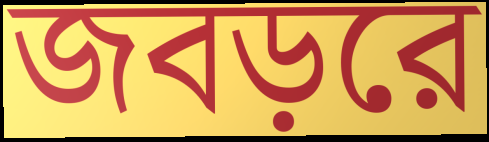
জবড়রে